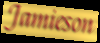
Jamieson